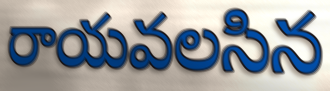
రాయవలసిన